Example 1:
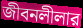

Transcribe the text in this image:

জীবনলীলার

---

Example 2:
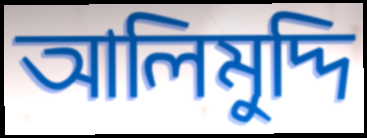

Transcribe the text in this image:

আলিমুদ্দি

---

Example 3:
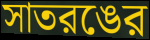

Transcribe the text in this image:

সাতরঙের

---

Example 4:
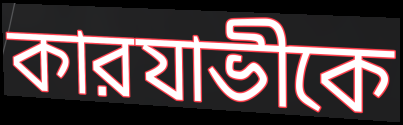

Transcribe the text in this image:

কারযাভীকে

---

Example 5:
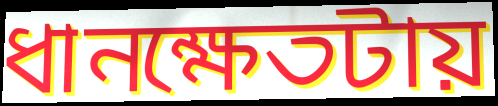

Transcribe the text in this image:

ধানক্ষেতটায়